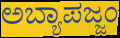
ಅಬ್ಯಾಪಜ್ಜಂ